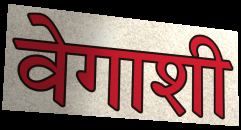
वेगाशी